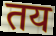
तय